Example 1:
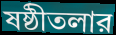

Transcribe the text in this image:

ষষ্ঠীতলার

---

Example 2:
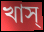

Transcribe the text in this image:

খাস্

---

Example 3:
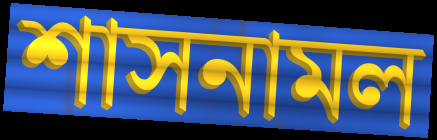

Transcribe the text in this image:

শাসনামল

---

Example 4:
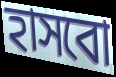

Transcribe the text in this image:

হাসবো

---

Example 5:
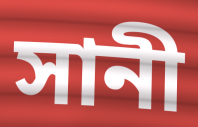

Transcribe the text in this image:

সানী